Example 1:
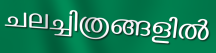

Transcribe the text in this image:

ചലച്ചിത്രങ്ങളിൽ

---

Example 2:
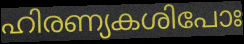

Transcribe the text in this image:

ഹിരണ്യകശിപോഃ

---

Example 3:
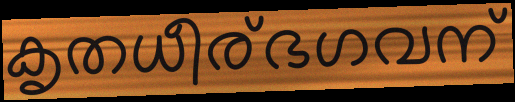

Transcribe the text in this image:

കൃതധീര്ഭഗവന്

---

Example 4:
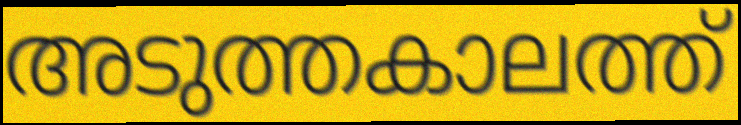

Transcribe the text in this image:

അടുത്തകാലത്ത്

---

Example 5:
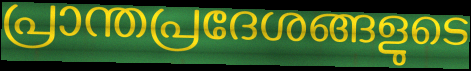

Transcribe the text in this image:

പ്രാന്തപ്രദേശങ്ങളുടെ